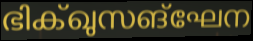
ഭിക്ഖുസങ്ഘേന